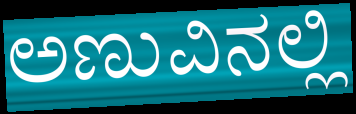
ಅಣುವಿನಲ್ಲಿ